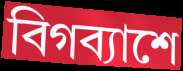
বিগব্যাশে